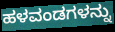
ಹಳವಂಡಗಳನ್ನು